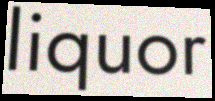
liquor